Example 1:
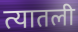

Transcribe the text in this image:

त्यातली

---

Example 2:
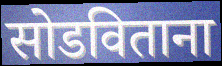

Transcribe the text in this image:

सोडविताना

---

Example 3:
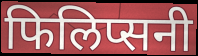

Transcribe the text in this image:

फिलिप्सनी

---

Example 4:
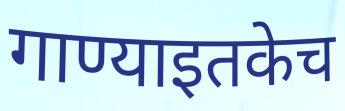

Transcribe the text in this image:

गाण्याइतकेच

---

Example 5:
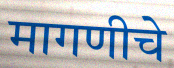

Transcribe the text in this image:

मागणीचे